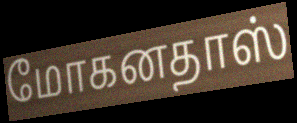
மோகனதாஸ்